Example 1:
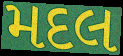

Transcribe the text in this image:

મદલ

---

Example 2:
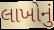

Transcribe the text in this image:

લાખોનું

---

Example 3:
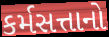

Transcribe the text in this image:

કર્મસત્તાનો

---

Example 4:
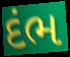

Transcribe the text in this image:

દંભ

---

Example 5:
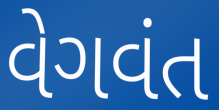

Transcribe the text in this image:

વેગવંત